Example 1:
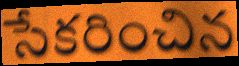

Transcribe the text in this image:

సేకరించిన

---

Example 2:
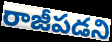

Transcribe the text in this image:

రాజీపడని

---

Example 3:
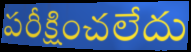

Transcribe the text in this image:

పరీక్షించలేదు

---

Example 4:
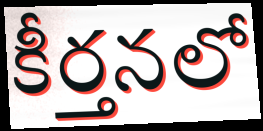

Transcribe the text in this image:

కీర్తనలో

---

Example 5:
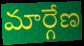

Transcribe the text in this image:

మార్గేణ